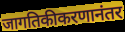
जागतिकीकरणानंतर